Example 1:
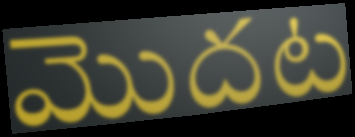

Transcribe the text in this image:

మొదట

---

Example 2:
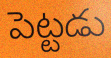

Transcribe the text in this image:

పెట్టడు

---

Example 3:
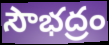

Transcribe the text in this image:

సౌభద్రం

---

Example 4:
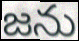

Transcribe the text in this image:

జను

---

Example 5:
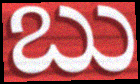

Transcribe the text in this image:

బు